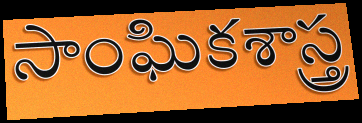
సాంఘికశాస్త్ర